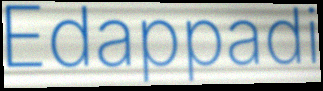
Edappadi